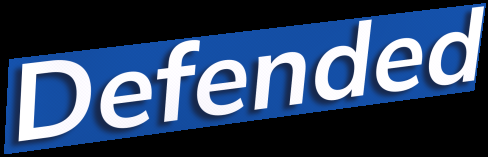
Defended